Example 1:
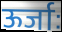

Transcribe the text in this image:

ऊर्जाः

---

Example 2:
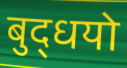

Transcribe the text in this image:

बुद्धयो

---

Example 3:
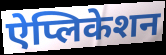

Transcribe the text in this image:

ऐप्लिकेशन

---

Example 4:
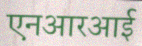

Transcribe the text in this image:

एनआरआई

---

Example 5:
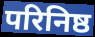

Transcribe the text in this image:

परिनिष्ठ